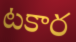
టకార